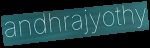
andhrajyothy